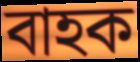
বাহক